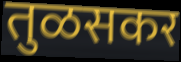
तुळसकर